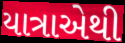
યાત્રાએથી